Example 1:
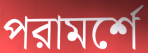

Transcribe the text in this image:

পরামর্শে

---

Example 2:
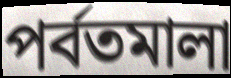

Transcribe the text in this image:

পর্বতমালা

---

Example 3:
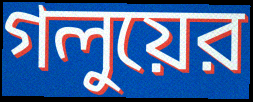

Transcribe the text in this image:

গলুয়ের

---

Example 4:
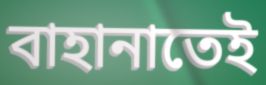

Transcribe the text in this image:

বাহানাতেই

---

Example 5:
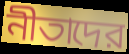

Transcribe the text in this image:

নীতাদের